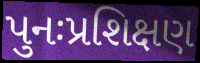
પુનઃપ્રશિક્ષણ